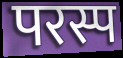
परस्प